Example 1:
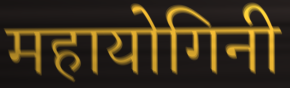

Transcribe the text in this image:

महायोगिनी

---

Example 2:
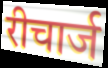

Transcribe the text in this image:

रीचार्ज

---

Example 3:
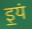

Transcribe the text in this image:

इ॒यं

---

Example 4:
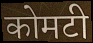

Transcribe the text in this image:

कोमटी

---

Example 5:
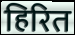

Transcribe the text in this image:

हिरित